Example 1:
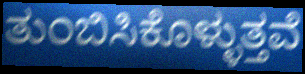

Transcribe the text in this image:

ತುಂಬಿಸಿಕೊಳ್ಳುತ್ತವೆ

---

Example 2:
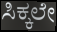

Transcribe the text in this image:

ಸಿಕ್ಕಲೇ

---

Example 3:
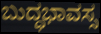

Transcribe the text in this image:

ಬುದ್ಧಭಾವಸ್ಸ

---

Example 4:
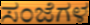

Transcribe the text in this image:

ಸಂಜೆಗಳ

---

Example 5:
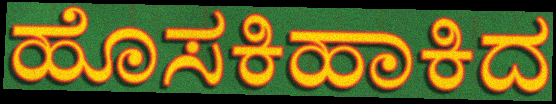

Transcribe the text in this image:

ಹೊಸಕಿಹಾಕಿದ